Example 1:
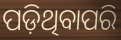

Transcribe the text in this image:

ପଡ଼ିଥିବାପରି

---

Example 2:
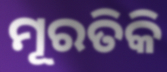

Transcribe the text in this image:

ମୂରତିକି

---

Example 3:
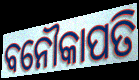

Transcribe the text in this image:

ବନୌକାପତି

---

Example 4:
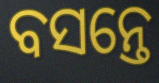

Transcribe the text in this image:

ବସନ୍ତେ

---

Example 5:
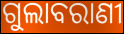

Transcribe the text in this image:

ଗୁଲାବରାଣୀ